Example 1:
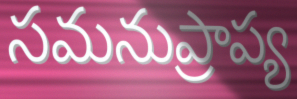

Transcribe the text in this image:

సమనుప్రాప్య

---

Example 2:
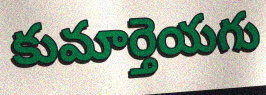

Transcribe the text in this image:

కుమార్తెయగు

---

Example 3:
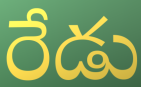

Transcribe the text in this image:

రేడు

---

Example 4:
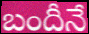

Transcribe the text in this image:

బందీనే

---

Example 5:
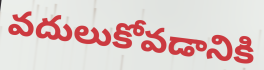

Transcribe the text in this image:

వదులుకోవడానికి